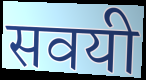
सवयी